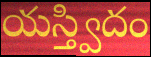
యస్త్విదం